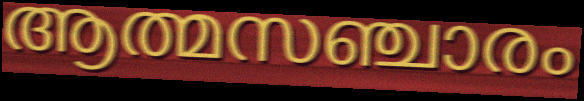
ആത്മസഞ്ചാരം